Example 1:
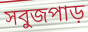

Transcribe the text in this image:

সবুজপাড়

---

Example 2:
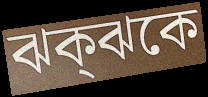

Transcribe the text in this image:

ঝক্ঝকে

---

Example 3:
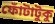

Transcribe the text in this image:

ফোঁটাটুকু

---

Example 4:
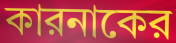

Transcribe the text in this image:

কারনাকের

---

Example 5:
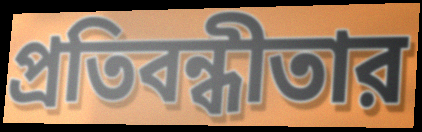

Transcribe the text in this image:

প্রতিবন্ধীতার